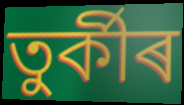
তুৰ্কীৰ